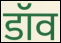
डॉव